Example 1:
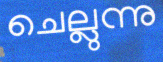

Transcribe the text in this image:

ചെല്ലുന്നു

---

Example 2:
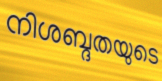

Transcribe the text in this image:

നിശബ്ദതയുടെ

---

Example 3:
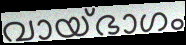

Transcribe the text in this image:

വായ്ഭാഗം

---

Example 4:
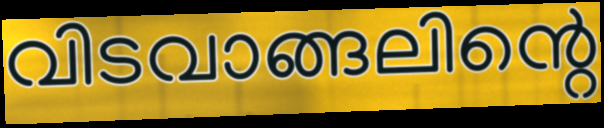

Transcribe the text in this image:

വിടവാങ്ങലിന്റെ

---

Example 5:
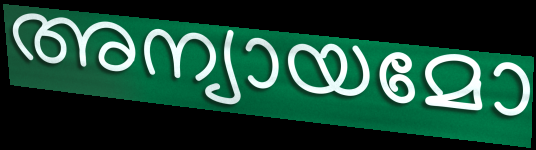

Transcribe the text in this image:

അന്യായമോ